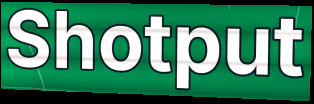
Shotput